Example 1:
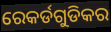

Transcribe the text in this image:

ରେକର୍ଡଗୁଡିକର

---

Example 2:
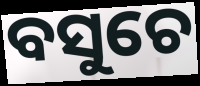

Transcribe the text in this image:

ବସୁଚେ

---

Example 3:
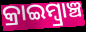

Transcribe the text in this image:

କ୍ରାଇମ୍ବ୍ରାଞ୍ଚ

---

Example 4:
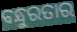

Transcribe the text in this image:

ବନ୍ଧୁରତାର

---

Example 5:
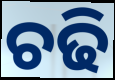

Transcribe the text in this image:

ଚଢି